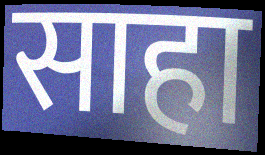
साहा